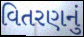
વિતરણનું